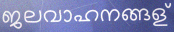
ജലവാഹനങ്ങള്